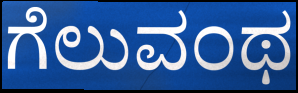
ಗೆಲುವಂಥ